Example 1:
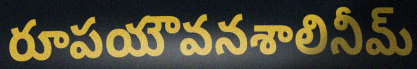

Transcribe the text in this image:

రూపయౌవనశాలినీమ్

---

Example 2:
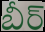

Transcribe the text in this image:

బీర్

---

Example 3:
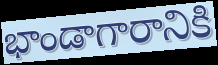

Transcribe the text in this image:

భాండాగారానికి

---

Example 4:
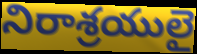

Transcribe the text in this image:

నిరాశ్రయులై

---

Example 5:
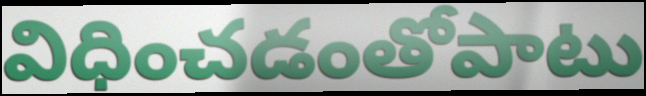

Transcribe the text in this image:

విధించడంతోపాటు